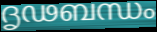
ദൃഢബന്ധം